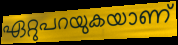
ഏറ്റുപറയുകയാണ്